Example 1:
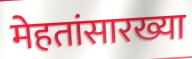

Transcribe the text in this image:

मेहतांसारख्या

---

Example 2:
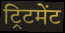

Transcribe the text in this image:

ट्रिटमेंट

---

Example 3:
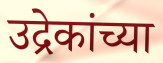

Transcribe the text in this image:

उद्रेकांच्या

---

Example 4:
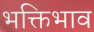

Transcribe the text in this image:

भक्तिभाव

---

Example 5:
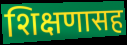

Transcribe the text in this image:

शिक्षणासह